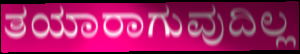
ತಯಾರಾಗುವುದಿಲ್ಲ